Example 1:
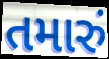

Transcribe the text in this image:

તમારું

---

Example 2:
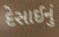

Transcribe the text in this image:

દેસાઈનું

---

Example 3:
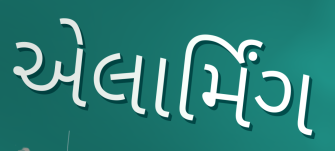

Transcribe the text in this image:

એલાર્મિંગ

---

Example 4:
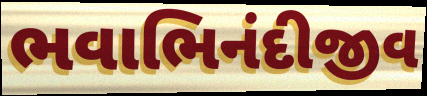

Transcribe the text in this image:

ભવાભિનંદીજીવ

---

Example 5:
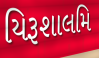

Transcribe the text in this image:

યિરૂશાલમિ